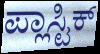
ಪ್ಲಾಸ್ಟಿಕ್